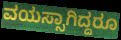
ವಯಸ್ಸಾಗಿದ್ದರೂ